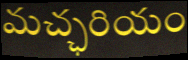
మచ్ఛరియం